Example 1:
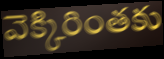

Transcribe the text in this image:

వెక్కిరింతకు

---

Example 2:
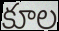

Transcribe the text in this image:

కూల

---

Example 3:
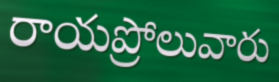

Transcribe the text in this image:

రాయప్రోలువారు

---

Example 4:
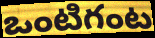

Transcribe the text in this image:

ఒంటిగంట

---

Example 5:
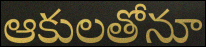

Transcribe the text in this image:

ఆకులతోనూ